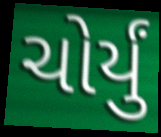
ચોર્યું